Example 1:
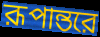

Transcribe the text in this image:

রূপান্তরে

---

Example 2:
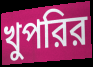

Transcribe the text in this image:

খুপরির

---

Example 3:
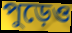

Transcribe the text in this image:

পুড়েও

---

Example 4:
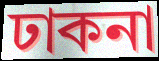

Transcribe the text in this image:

ঢাকনা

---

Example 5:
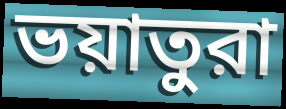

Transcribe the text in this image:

ভয়াতুরা